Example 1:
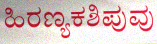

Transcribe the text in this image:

ಹಿರಣ್ಯಕಶಿಪುವು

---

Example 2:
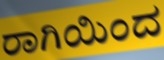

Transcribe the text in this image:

ರಾಗಿಯಿಂದ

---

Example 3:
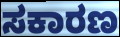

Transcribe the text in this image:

ಸಕಾರಣ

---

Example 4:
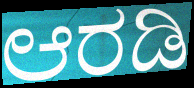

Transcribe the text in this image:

ಆರಡಿ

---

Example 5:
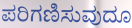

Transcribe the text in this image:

ಪರಿಗಣಿಸುವುದೂ